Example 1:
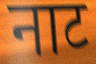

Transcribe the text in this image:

नाट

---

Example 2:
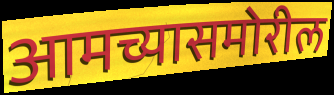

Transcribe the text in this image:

आमच्यासमोरील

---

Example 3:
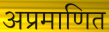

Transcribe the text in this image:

अप्रमाणित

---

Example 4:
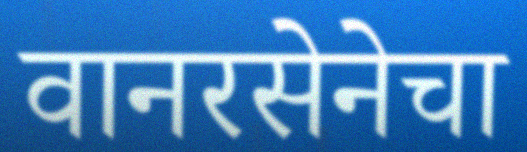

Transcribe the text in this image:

वानरसेनेचा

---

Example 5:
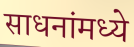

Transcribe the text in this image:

साधनांमध्ये